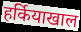
हर्कियाखाल